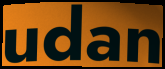
udan